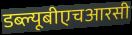
डब्ल्यूबीएचआरसी